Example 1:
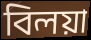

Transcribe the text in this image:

বিলয়া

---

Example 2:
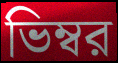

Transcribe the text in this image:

ভিম্বর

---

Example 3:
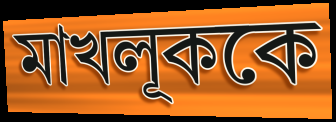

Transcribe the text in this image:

মাখলূককে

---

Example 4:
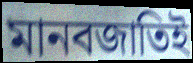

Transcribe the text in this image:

মানবজাতিই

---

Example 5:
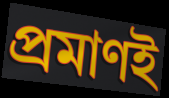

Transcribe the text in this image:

প্রমাণই